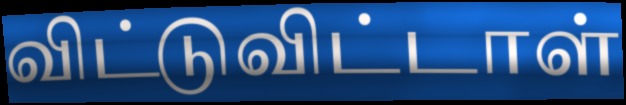
விட்டுவிட்டாள்